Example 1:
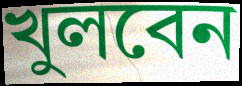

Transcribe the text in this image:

খুলবেন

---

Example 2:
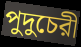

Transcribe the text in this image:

পুদুচেরী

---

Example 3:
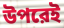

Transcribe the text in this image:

উপরেই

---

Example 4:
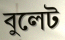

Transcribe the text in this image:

বুলেট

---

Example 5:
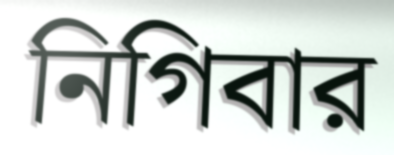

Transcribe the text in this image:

নিগিবার